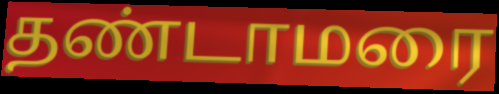
தண்டாமரை